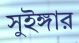
সুইঙ্গার